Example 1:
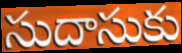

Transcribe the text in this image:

సుదాసుకు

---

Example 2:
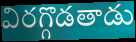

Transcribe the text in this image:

విరగ్గొడతాడు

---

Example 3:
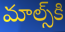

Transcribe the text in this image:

మాల్స్‌కి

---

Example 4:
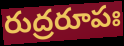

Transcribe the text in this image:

రుద్రరూపః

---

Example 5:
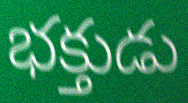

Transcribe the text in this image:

భక్తుడు